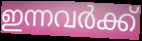
ഇന്നവർക്ക്